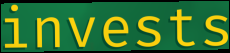
invests